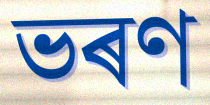
ভৰণ